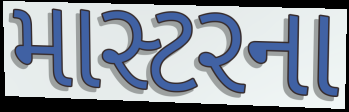
માસ્ટરના